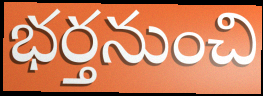
భర్తనుంచి